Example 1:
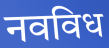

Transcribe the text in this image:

नवविध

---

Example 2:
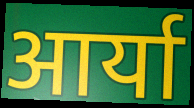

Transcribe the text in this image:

आर्या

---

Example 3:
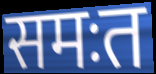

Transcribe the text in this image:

समःत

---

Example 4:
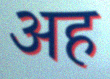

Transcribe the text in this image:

अह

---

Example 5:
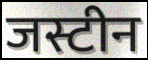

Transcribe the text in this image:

जस्टीन